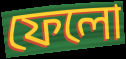
ফেলো